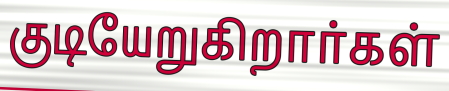
குடியேறுகிறார்கள்